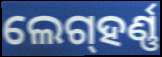
ଲେଗ୍‌ହର୍ଣ୍ଣ